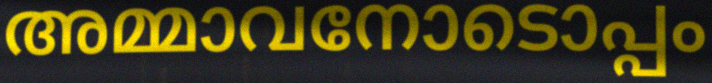
അമ്മാവനോടൊപ്പം